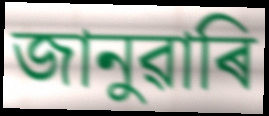
জানুৱাৰি